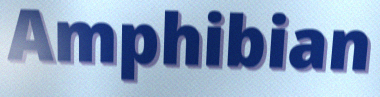
Amphibian